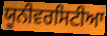
ਯੂਨੀਵਰਸਿਟੀਆ